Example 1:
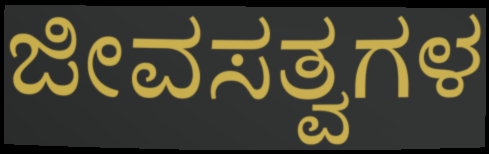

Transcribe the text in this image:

ಜೀವಸತ್ವಗಳ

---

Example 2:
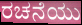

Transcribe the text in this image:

ರಚನೆಯು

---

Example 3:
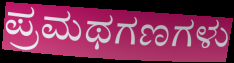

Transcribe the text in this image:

ಪ್ರಮಥಗಣಗಳು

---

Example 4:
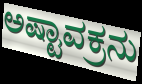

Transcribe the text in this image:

ಅಷ್ಟಾವಕ್ರನು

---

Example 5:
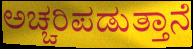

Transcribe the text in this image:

ಅಚ್ಚರಿಪಡುತ್ತಾನೆ